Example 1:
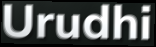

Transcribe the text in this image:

Urudhi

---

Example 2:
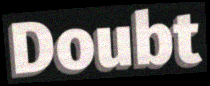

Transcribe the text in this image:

Doubt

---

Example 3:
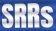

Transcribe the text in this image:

SRRs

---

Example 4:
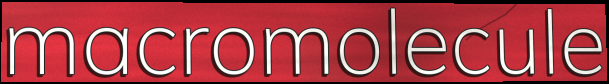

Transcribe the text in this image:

macromolecule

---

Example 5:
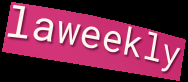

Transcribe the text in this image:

laweekly